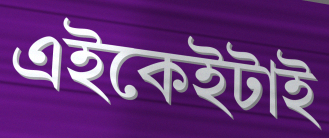
এইকেইটাই